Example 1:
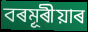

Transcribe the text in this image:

বৰমূৰীয়াৰ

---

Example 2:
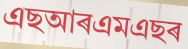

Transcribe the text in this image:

এছআৰএমএছৰ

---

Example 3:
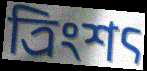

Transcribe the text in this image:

ত্ৰিংশৎ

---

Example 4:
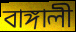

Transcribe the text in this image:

বাঙ্গালী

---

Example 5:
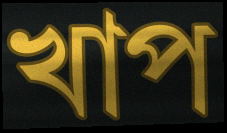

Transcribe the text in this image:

খাপ